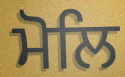
ਮੋਲਿ